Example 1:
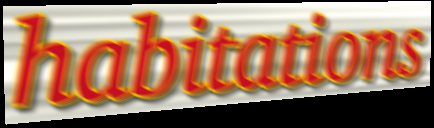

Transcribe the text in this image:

habitations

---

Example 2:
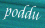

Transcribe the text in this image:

poddu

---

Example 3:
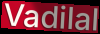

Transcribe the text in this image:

Vadilal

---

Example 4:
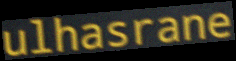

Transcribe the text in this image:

ulhasrane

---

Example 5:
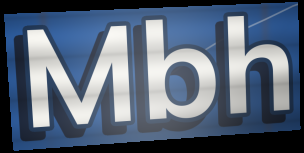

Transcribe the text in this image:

Mbh